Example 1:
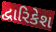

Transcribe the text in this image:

દ્વારિકેશ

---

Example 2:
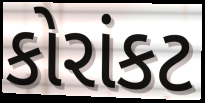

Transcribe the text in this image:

કોરાંકટ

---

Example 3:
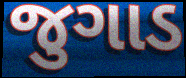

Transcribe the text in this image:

જુગાડ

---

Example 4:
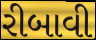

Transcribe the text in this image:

રીબાવી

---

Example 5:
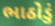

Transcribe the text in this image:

ભાઠોડું